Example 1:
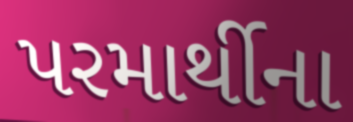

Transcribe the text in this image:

પરમાર્થીના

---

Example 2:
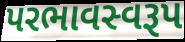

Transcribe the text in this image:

પરભાવસ્વરૂપ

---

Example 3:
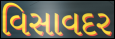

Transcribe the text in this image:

વિસાવદર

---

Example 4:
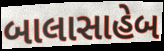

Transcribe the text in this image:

બાલાસાહેબ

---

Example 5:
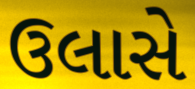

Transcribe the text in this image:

ઉલાસે